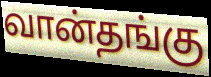
வான்தங்கு